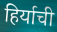
हिर्याची